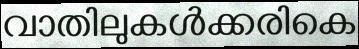
വാതിലുകൾക്കരികെ